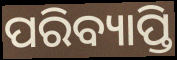
ପରିବ୍ୟାପ୍ତି